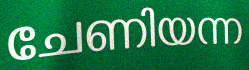
ചേണിയന്ന